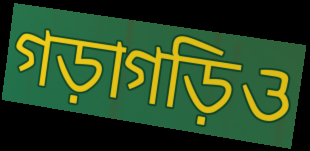
গড়াগড়িও